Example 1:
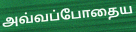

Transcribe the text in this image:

அவ்வப்போதைய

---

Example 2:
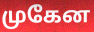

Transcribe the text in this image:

முகேன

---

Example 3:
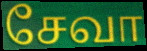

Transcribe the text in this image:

சேவா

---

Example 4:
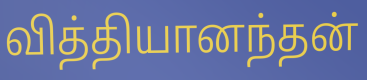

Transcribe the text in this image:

வித்தியானந்தன்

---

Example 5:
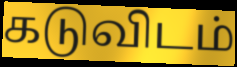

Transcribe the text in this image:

கடுவிடம்